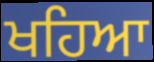
ਖਹਿਆ